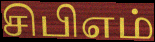
சிபிஎம்